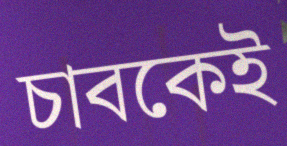
চাবকেই